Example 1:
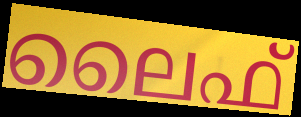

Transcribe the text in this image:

ലൈഫ്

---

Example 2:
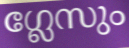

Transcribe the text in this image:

ഗ്ലേസും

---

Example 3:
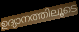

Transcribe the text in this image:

ഉദ്യാനത്തിലൂടെ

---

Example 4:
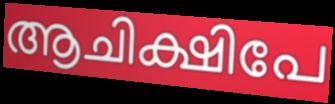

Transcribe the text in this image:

ആചിക്ഷിപേ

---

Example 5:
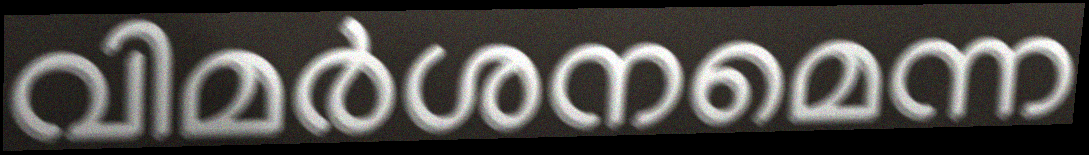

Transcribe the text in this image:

വിമർശനമെന്ന